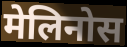
मेलिनोस